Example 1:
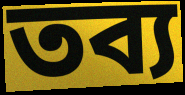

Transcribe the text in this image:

তব্য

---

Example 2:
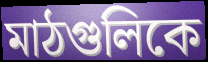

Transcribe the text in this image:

মাঠগুলিকে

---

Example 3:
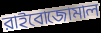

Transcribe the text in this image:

রাইবোজোমাল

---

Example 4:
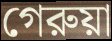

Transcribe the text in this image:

গেরুয়া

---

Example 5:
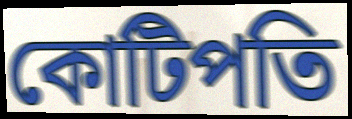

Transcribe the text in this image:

কোটিপতি